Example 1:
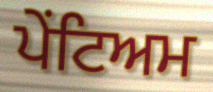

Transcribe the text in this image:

ਪੇਂਟਿਅਮ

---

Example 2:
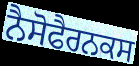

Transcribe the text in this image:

ਨੈਸੋਫੈਰਨਕਸ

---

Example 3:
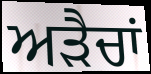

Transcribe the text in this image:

ਅੜੈਚਾਂ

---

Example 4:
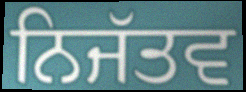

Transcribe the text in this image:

ਨਿਜੱਤਵ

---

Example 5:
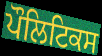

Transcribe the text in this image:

ਪੌਲਿਟਿਕਸ